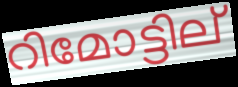
റിമോട്ടില്